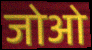
जोओ